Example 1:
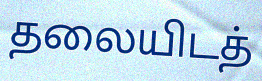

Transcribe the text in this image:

தலையிடத்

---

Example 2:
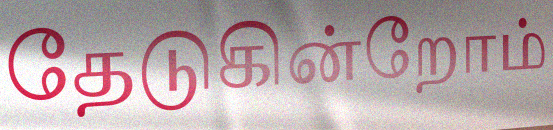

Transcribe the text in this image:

தேடுகின்றோம்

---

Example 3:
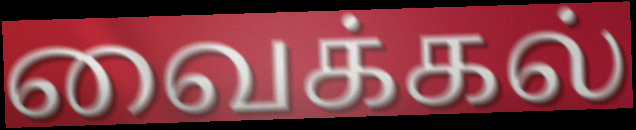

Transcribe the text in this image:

வைக்கல்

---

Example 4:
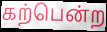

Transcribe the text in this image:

கற்பென்ற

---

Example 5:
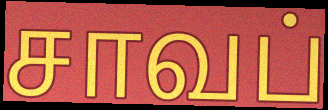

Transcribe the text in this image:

சாவப்